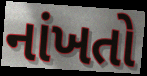
નાંખતો